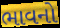
ભાવનો